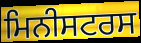
ਮਿਨੀਸਟਰਸ